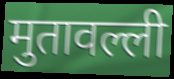
मुतावल्ली